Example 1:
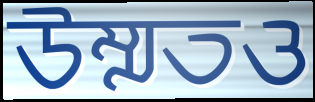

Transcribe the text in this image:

উম্মতও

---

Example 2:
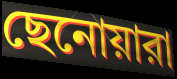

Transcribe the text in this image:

ছেনোয়ারা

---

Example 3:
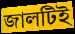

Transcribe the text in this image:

জালটিই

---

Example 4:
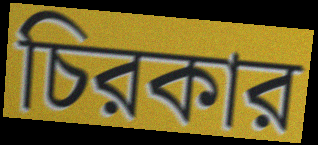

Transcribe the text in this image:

চিরকার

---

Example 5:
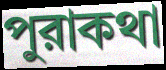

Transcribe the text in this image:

পুরাকথা